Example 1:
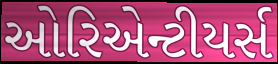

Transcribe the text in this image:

ઓરિએન્ટીયર્સ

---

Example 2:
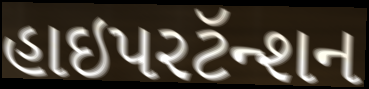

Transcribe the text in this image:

હાઇપરટૅન્શન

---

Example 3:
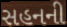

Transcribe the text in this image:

સહનની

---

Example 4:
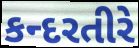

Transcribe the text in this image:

કન્દરતીરે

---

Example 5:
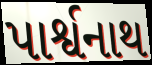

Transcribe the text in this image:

પાર્શ્વનાથ